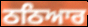
ਠਠਿਆਰ